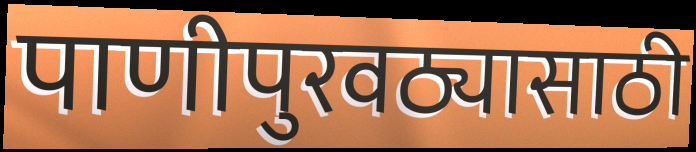
पाणीपुरवठ्यासाठी